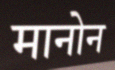
मानोन